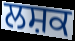
ਲਸ਼ਕ